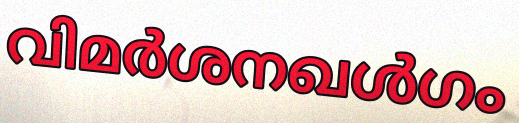
വിമർശനഖൾഗം